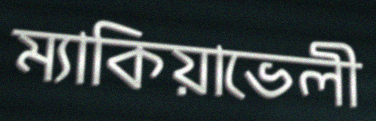
ম্যাকিয়াভেলী